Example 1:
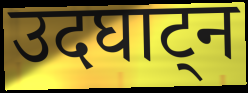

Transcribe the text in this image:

उदघाट्न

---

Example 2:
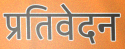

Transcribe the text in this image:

प्रतिवेदन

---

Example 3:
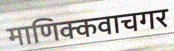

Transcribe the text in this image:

माणिक्कवाचगर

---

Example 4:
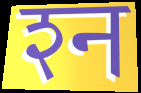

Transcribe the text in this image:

श्न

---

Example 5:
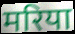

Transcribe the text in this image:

मरिया